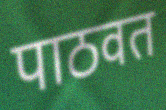
पाठवत